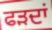
ਫੜਦਾਂ